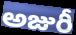
అజురీ